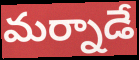
మర్నాడే